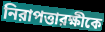
নিরাপত্তারক্ষীকে